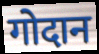
गोदान